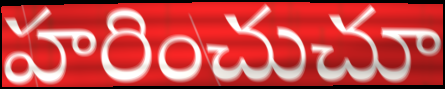
హరించుచూ